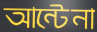
আন্টেনা